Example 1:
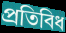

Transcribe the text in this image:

প্ৰতিবিধ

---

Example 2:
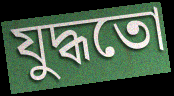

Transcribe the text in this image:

যুদ্ধতো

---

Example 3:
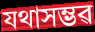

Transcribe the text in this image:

যথাসম্ভৱ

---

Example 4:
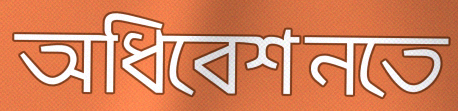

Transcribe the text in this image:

অধিবেশনতে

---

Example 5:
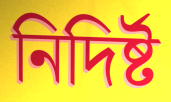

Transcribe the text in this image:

নিদিৰ্ষ্ট